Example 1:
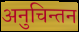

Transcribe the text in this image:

अनुचिन्तन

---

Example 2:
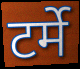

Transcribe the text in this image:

टर्मे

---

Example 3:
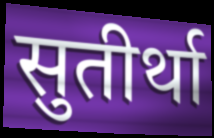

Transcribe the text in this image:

सुतीर्था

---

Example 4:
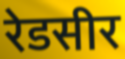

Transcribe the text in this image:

रेडसीर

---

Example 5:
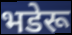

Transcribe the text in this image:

भडेरू